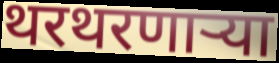
थरथरणाऱ्या